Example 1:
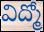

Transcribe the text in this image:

విద్మో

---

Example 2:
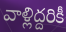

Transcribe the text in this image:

వాళ్లిద్దరికీ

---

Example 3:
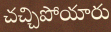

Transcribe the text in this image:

చచ్చిపోయారు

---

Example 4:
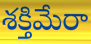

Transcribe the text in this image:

శక్తిమేరా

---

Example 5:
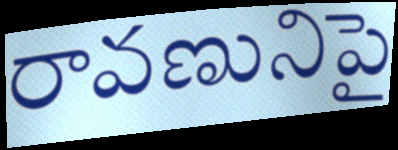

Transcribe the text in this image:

రావణునిపై